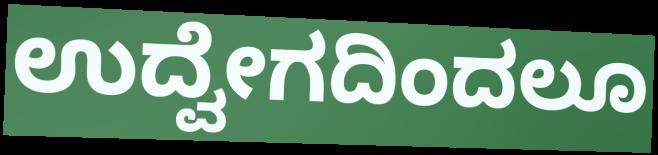
ಉದ್ವೇಗದಿಂದಲೂ